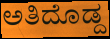
ಅತಿದೊಡ್ದ